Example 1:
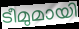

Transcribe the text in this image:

ടീമുമായി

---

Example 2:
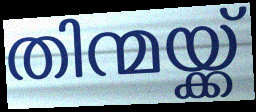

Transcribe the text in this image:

തിന്മയ്ക്ക്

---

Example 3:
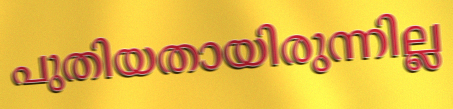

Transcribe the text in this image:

പുതിയതായിരുന്നില്ല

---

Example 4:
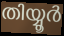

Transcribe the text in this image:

തിയ്യൂർ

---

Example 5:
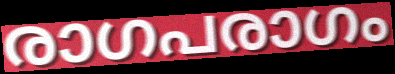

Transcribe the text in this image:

രാഗപരാഗം